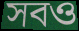
সবও